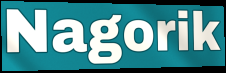
Nagorik